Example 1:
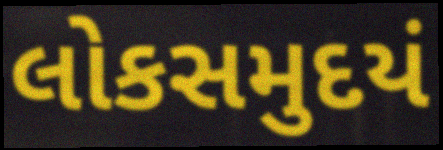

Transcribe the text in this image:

લોકસમુદયં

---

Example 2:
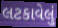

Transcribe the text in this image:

લટકાવેલું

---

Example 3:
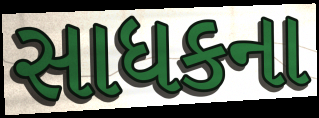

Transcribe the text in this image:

સાધકના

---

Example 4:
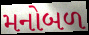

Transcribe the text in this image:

મનોબળ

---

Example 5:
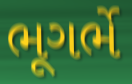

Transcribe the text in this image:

ભૂગર્ભે